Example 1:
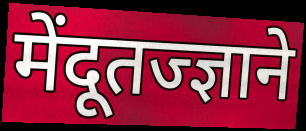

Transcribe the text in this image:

मेंदूतज्ज्ञाने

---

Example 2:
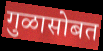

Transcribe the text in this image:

गुळासोबत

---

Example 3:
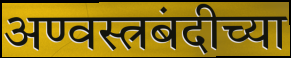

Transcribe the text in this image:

अण्वस्त्रबंदीच्या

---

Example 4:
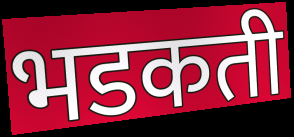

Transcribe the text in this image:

भडकती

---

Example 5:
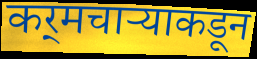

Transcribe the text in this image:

कर्मचाऱ्याकडून